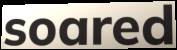
soared